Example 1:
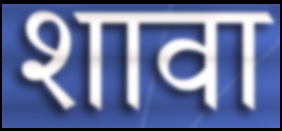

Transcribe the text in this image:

शावा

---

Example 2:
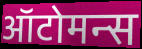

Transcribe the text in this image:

ऑटोमन्स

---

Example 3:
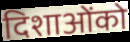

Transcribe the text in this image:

दिशाओंको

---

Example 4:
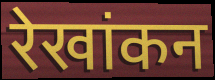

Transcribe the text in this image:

रेखांकन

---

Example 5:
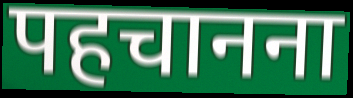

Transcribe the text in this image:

पहचानना